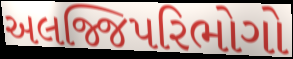
અલજ્જિપરિભોગો